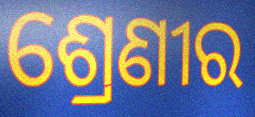
ଶ୍ରେଣୀର